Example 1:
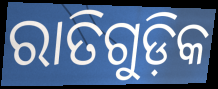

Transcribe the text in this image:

ରାତିଗୁଡ଼ିକ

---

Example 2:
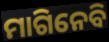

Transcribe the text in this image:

ମାଗିନେବି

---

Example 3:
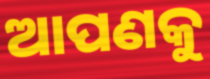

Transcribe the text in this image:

ଆପଣକୁ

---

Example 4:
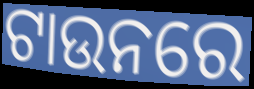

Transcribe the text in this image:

ଟାଉନରେ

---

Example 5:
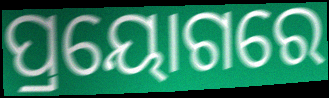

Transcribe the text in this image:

ପ୍ରୟୋଗରେ